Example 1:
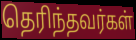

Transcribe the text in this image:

தெரிந்தவர்கள்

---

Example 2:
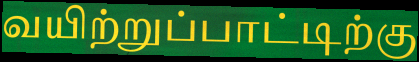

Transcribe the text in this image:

வயிற்றுப்பாட்டிற்கு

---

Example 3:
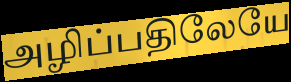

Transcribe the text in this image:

அழிப்பதிலேயே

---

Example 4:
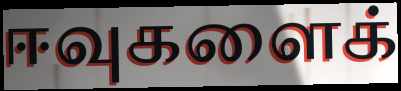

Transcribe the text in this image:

ஈவுகளைக்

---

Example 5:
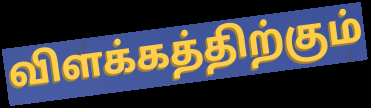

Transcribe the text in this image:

விளக்கத்திற்கும்